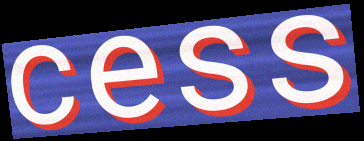
cess